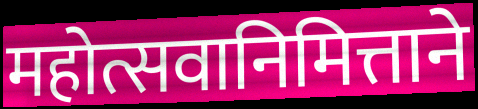
महोत्सवानिमित्ताने